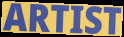
ARTIST